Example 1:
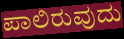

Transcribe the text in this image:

ಪಾಲಿರುವುದು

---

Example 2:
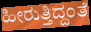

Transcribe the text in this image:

ಹೀರುತ್ತಿದ್ದಂತೆ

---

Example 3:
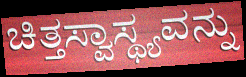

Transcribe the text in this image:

ಚಿತ್ತಸ್ವಾಸ್ಥ್ಯವನ್ನು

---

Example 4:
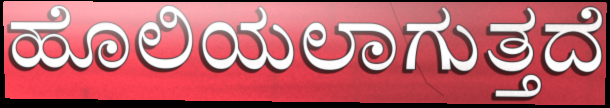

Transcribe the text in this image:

ಹೊಲಿಯಲಾಗುತ್ತದೆ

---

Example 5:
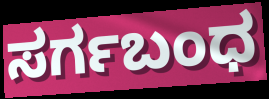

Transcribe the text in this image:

ಸರ್ಗಬಂಧ